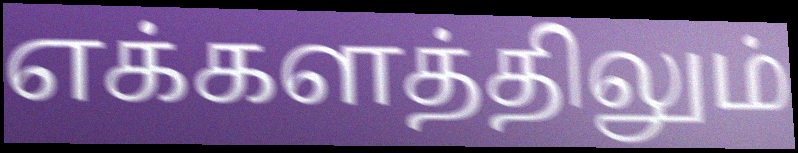
எக்களத்திலும்